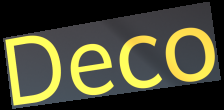
Deco